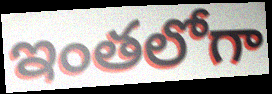
ఇంతలోగా